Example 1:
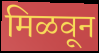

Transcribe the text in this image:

मिळवून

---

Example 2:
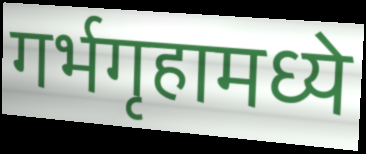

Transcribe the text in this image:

गर्भगृहामध्ये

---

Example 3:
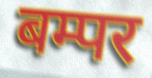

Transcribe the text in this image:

बम्पर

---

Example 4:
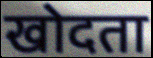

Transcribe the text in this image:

खोदता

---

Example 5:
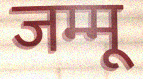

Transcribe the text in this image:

जम्मू